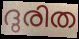
ദുരിത